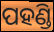
ପହଣ୍ଡି